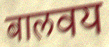
बालवय